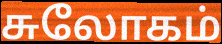
சுலோகம்